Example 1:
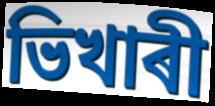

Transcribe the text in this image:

ভিখাৰী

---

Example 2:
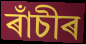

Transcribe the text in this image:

ৰাঁচীৰ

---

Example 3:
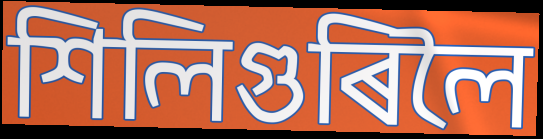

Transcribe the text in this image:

শিলিগুৰিলৈ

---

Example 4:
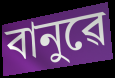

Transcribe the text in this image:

বানুৱে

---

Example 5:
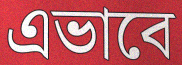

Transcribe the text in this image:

এভাবে